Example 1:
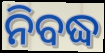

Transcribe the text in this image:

ନିବଦ୍ଧ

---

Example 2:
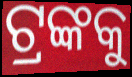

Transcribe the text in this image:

ଟ୍ରଙ୍କକୁ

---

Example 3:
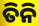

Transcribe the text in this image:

ତିନି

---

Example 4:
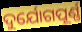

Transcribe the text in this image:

ଦୁର୍ଯୋଗପୂର୍ଣ୍ଣ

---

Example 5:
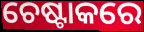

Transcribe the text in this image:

ଚେଷ୍ଟାକରେ